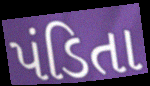
પંડિતા